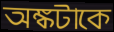
অঙ্কটাকে